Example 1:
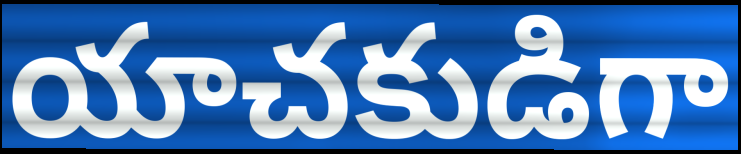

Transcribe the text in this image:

యాచకుడిగా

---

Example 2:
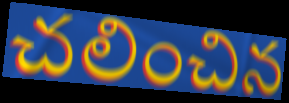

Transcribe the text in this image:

చలించిన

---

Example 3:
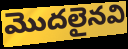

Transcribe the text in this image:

మొదలైనవి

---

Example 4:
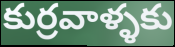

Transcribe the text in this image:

కుర్రవాళ్ళకు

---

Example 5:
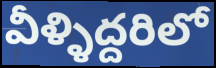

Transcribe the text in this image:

వీళ్ళిద్దరిలో